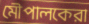
মৌপালকেরা